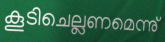
കൂടിചെല്ലണമെന്നു്